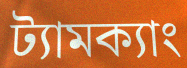
ট্যামক্যাং